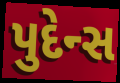
પુદેન્સ